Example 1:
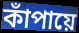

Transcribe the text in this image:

কাঁপায়ে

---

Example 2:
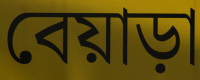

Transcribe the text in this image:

বেয়াড়া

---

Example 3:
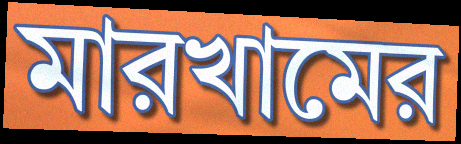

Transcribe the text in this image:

মারখামের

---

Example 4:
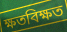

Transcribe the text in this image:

ক্ষতবিক্ষত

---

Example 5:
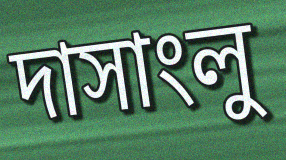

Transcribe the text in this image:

দাসাংলু